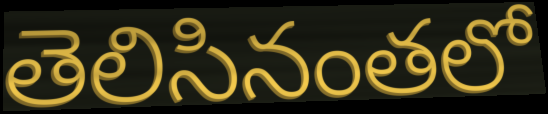
తెలిసినంతలో